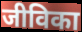
जीविका